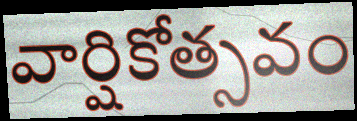
వార్షికోత్సవం